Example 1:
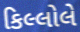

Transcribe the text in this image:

કિલ્લોલે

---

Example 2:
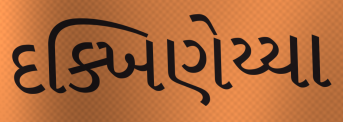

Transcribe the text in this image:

દક્ખિણેય્યા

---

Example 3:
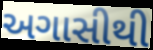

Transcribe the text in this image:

અગાસીથી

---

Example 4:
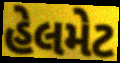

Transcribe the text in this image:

હેલમેટ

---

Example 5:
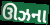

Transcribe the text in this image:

ઊઝના